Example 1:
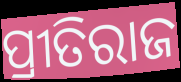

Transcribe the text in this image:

ପ୍ରୀତିରାଜ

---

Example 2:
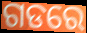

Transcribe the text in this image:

ଗଡରେ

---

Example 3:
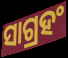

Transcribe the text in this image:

ସାଗ୍ରହଂ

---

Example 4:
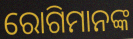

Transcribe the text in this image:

ରୋଗିମାନଙ୍କ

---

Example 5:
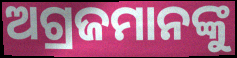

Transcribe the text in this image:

ଅଗ୍ରଜମାନଙ୍କୁ